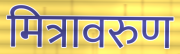
मित्रावरुण